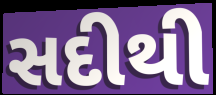
સદીથી